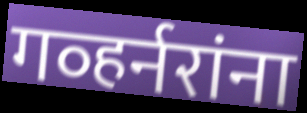
गव्हर्नरांना